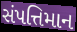
સંપત્તિમાન